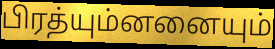
பிரத்யும்னனையும்